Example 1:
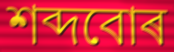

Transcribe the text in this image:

শব্দবোৰ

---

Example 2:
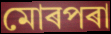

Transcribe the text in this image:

মোৰপৰা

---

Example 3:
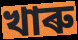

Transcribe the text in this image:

খাৰু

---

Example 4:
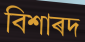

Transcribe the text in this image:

বিশাৰদ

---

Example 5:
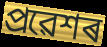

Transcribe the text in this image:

প্ৰৱেশৰ